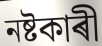
নষ্টকাৰী